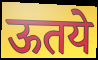
ऊतये